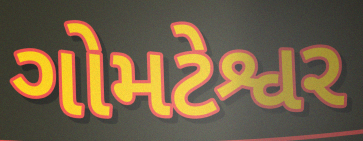
ગોમટેશ્વર